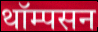
थॉम्पसन